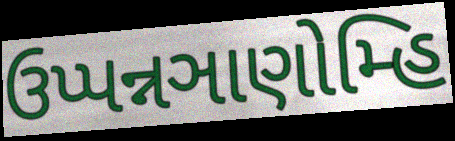
ઉપ્પન્નઞાણોમ્હિ